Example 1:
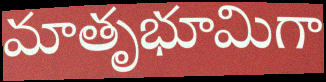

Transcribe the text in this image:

మాతృభూమిగా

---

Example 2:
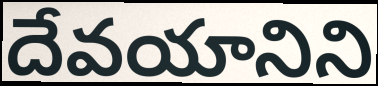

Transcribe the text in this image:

దేవయానిని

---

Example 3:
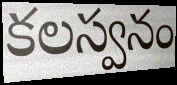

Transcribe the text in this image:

కలస్వనం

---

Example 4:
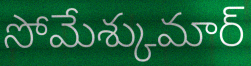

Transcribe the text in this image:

సోమేశ్కుమార్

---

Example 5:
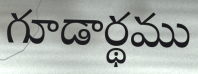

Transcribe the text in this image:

గూడార్థము